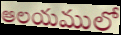
ఆలయములో